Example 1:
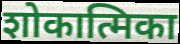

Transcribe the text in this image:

शोकात्मिका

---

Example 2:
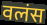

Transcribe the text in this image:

वलंस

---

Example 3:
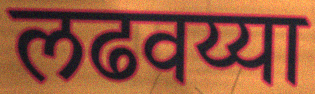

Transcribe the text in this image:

लढवय्या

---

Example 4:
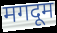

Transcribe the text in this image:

मगदूम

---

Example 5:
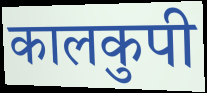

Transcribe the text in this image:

कालकुपी